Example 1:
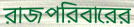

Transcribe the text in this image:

রাজপরিবারের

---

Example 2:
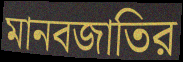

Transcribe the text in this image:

মানবজাতির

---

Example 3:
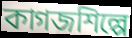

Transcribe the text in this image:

কাগজশিল্পে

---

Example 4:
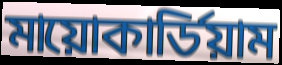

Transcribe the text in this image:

মায়োকার্ডিয়াম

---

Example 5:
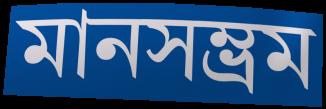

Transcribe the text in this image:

মানসম্ভ্রম